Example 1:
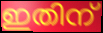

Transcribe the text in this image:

ഇതിന്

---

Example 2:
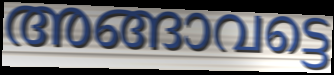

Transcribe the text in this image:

അങ്ങാവട്ടെ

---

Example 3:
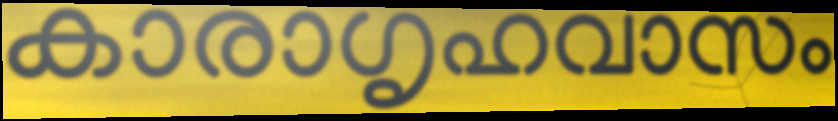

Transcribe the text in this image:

കാരാഗൃഹവാസം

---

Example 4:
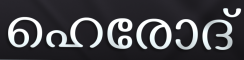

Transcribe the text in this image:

ഹെരോദ്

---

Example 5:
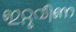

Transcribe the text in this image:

ഇറ്റുവീണ